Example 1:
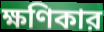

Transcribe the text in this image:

ক্ষণিকার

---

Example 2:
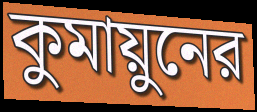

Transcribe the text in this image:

কুমায়ুনের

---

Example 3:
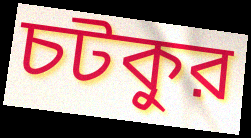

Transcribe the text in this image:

চটকুর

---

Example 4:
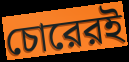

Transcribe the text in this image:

চোরেরই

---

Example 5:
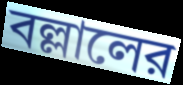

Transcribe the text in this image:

বল্লালের